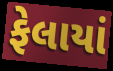
ફેલાયાં